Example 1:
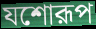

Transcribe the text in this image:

যশোরূপ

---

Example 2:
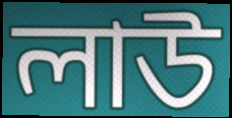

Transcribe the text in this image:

লাউ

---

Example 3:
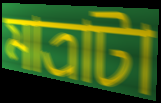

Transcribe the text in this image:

মাত্রাটা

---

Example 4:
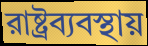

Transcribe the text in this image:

রাষ্ট্রব্যবস্থায়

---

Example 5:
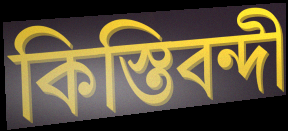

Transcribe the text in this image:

কিস্তিবন্দী